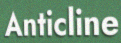
Anticline